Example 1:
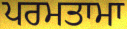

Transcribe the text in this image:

ਪਰਮਤਾਮਾ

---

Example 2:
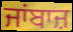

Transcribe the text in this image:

ਜਾਂਬਾਜ਼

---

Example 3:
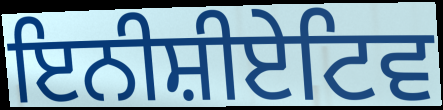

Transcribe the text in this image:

ਇਨੀਸ਼ੀਏਟਿਵ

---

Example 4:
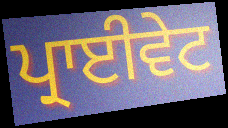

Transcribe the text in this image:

ਪ੍ਰਾਈਵੇਟ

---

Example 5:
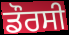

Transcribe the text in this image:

ਡੌਰਸੀ